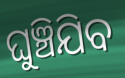
ଘୁଞ୍ଚିଯିବ